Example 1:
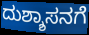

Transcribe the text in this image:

ದುಶ್ಶಾಸನಗೆ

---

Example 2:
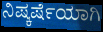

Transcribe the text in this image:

ನಿಷ್ಕರ್ಷೆಯಾಗಿ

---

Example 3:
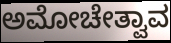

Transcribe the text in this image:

ಅಮೋಚೇತ್ವಾವ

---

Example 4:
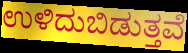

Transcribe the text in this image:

ಉಳಿದುಬಿಡುತ್ತವೆ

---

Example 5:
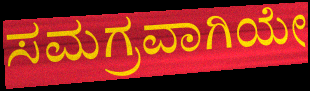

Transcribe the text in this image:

ಸಮಗ್ರವಾಗಿಯೇ